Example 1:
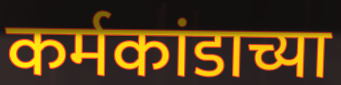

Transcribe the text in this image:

कर्मकांडाच्या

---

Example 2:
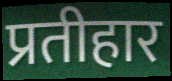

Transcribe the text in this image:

प्रतीहार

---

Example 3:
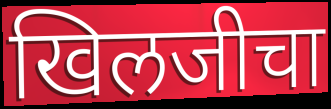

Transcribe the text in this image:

खिलजीचा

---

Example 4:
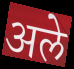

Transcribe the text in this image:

अले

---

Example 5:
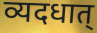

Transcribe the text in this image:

व्यदधात्